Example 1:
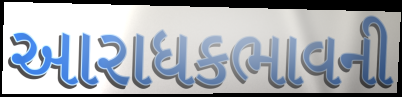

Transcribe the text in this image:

આરાધકભાવની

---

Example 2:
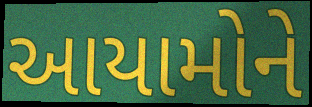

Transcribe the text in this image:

આયામોને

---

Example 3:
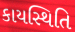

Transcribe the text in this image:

કાયસ્થિતિ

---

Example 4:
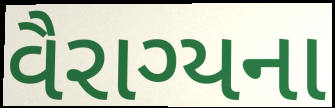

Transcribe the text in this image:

વૈરાગ્યના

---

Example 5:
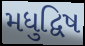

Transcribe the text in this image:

મધુદ્વિષ